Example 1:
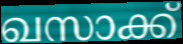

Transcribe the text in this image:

ഖസാക്ക്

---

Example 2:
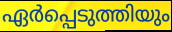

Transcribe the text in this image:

ഏർപ്പെടുത്തിയും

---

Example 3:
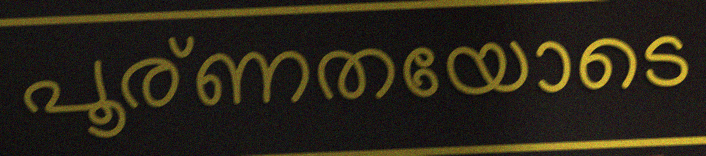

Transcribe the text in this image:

പൂര്ണതയോടെ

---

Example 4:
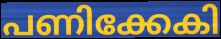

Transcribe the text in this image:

പണിക്കേകി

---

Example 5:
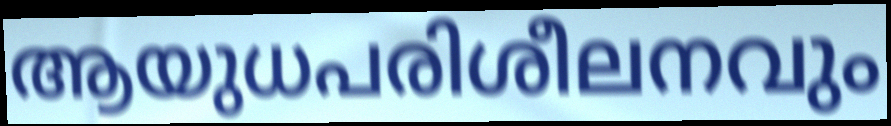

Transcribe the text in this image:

ആയുധപരിശീലനവും